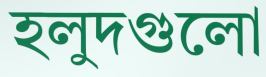
হলুদগুলো